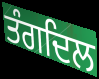
ਤੰਗਦਿਲ